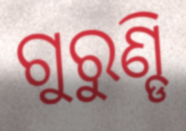
ଗୁରୁଣ୍ଡି